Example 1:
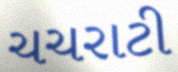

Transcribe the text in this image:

ચચરાટી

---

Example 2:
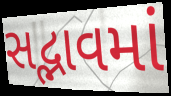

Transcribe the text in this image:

સદ્ભાવમાં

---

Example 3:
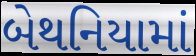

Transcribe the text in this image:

બેથનિયામાં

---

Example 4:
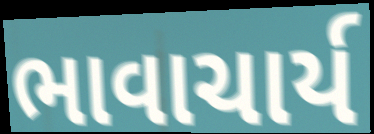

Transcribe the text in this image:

ભાવાચાર્ય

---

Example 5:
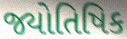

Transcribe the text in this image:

જ્યોતિષિક